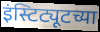
इंस्टिट्यूटच्या